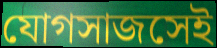
যোগসাজসেই